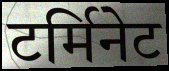
टर्मिनेट